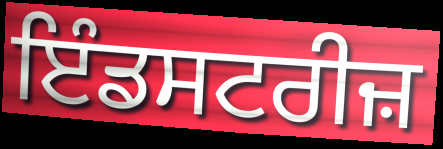
ਇੰਡਸਟਰੀਜ਼